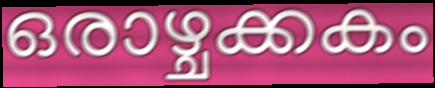
ഒരാഴ്ചക്കകം